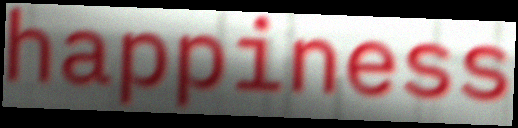
happiness